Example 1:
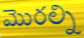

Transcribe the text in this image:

మొరల్ని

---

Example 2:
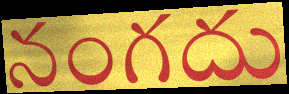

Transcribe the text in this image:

నంగదు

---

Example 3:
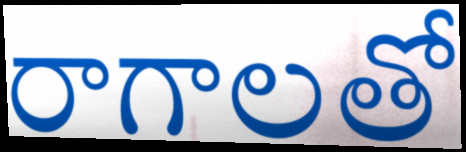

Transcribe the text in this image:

రాగాలతో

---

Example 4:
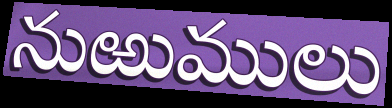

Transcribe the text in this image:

నుఱుములు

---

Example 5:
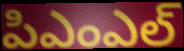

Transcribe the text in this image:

పిఎంఎల్